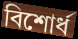
বিশোর্ধ